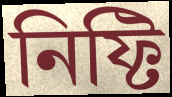
নিফ্টি